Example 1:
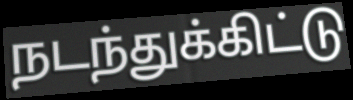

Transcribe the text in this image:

நடந்துக்கிட்டு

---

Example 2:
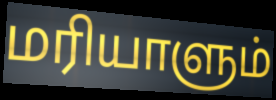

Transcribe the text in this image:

மரியாளும்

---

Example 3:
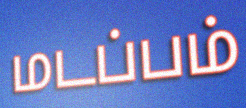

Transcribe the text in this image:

மடப்பம்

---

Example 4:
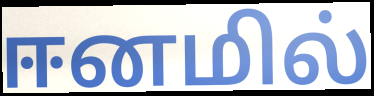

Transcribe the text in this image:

ஈனமில்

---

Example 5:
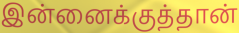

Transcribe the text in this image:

இன்னைக்குத்தான்